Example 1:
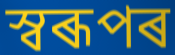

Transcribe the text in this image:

স্বৰূপৰ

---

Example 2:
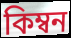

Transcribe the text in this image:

কিম্বন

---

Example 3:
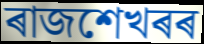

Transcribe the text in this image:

ৰাজশেখৰৰ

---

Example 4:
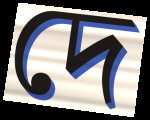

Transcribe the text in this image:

দে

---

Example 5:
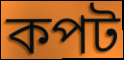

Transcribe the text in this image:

কপট